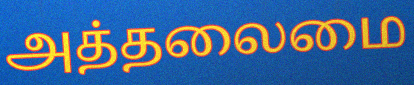
அத்தலைமை